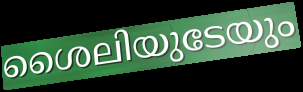
ശൈലിയുടേയും